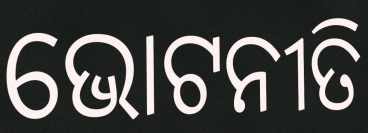
ଭୋଟନୀତି